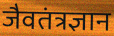
जैवतंत्रज्ञान